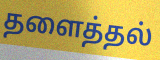
தளைத்தல்